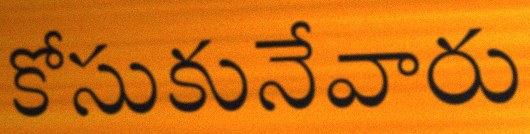
కోసుకునేవారు